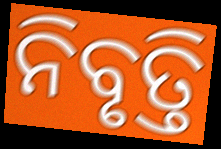
ନିବୃତ୍ତି